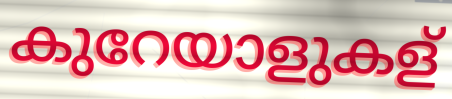
കുറേയാളുകള്